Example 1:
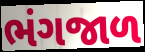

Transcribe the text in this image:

ભંગજાળ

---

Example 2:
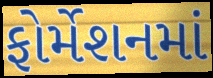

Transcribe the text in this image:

ફોર્મેશનમાં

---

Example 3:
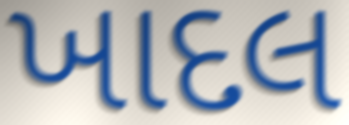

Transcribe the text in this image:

ખાદલ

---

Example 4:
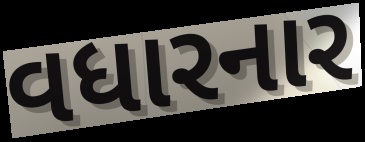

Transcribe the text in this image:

વધારનાર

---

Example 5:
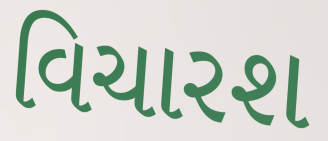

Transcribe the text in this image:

વિચારશ